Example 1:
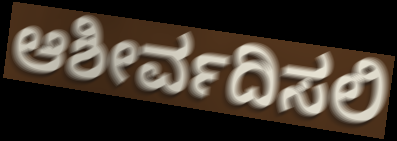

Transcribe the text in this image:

ಆಶೀರ್ವದಿಸಲಿ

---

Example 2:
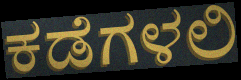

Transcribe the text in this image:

ಕಡೆಗಳಲಿ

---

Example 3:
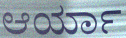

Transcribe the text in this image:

ಆರ್ಯಾ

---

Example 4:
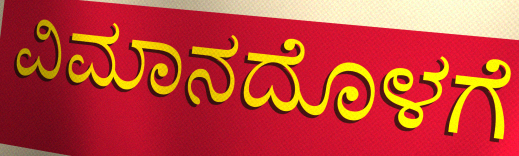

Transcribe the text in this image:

ವಿಮಾನದೊಳಗೆ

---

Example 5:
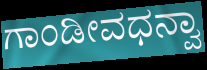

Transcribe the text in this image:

ಗಾಂಡೀವಧನ್ವಾ